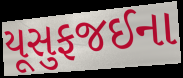
યૂસુફજઈના